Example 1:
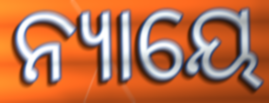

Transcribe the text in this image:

ନ୍ୟାୟେ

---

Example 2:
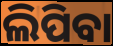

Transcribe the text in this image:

ଲିପିବା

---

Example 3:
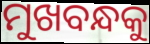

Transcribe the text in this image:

ମୁଖବନ୍ଧକୁ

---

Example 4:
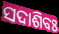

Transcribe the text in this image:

ସଦାଶିବଃ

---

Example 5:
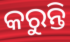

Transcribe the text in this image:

କରୁନ୍ତି